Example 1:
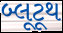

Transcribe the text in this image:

બ્લૂટૂથ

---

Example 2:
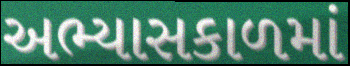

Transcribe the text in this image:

અભ્યાસકાળમાં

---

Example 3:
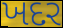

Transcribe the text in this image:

ખદર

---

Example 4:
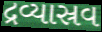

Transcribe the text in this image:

દ્રવ્યાસ્રવ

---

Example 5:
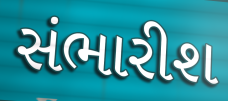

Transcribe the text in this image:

સંભારીશ